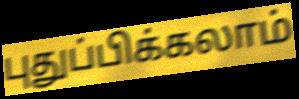
புதுப்பிக்கலாம்